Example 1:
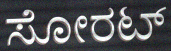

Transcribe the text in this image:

ಸೋರಟ್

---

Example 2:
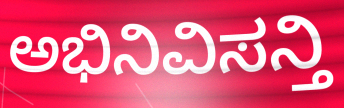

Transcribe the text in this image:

ಅಭಿನಿವಿಸನ್ತಿ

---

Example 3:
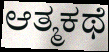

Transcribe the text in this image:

ಆತ್ಮಕಥೆ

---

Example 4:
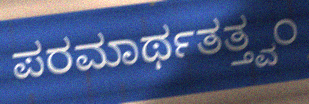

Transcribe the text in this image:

ಪರಮಾರ್ಥತತ್ತ್ವಂ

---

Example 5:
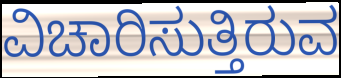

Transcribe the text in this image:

ವಿಚಾರಿಸುತ್ತಿರುವ